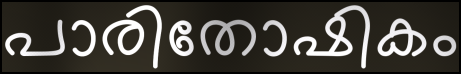
പാരിതോഷികം